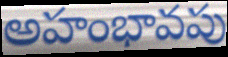
అహంభావపు